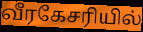
வீரகேசரியில்